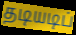
தடியடிப்